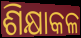
ଶିକ୍ଷାକଳ